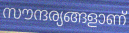
സൗന്ദര്യങ്ങളാണ്